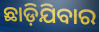
ଛାଡ଼ିଯିବାର